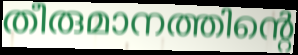
തീരുമാനത്തിന്റെ